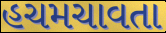
હચમચાવતા